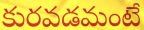
కురవడమంటే